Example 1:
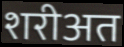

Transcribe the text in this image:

शरीअत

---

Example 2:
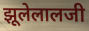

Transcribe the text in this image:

झूलेलालजी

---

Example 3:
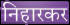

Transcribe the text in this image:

निहारकर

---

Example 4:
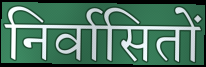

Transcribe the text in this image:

निर्वासितों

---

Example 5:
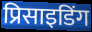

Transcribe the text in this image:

प्रिसाइडिंग